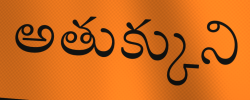
అతుక్కుని